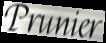
Prunier